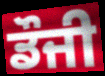
ਡੌਜੀ